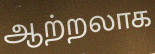
ஆற்றலாக